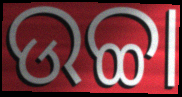
ଉଚ୍ଚା